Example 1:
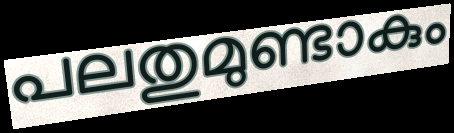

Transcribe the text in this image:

പലതുമുണ്ടാകും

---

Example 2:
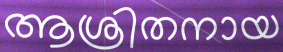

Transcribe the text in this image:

ആശ്രിതനായ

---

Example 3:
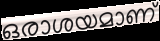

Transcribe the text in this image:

ഒരാശയമാണ്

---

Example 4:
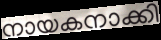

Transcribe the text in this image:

നായകനാക്കി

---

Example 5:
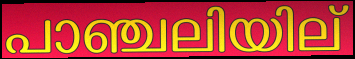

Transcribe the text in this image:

പാഞ്ചലിയില്